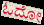
ಓದೋ